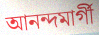
আনন্দমার্গী